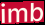
imb